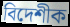
বিদেশীক